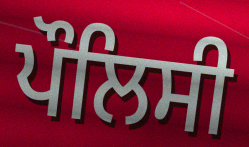
ਪੌਲਿਸੀ